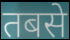
तबसे